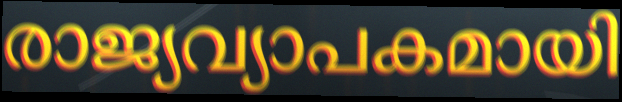
രാജ്യവ്യാപകമായി